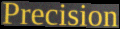
Precision